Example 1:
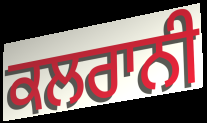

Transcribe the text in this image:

ਕਲਰਾਨੀ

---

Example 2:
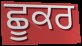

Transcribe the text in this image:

ਛੂਕਰ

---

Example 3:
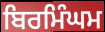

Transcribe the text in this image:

ਬਿਰਮਿੰਘਮ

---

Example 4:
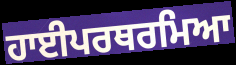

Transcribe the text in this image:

ਹਾਈਪਰਥਰਮਿਆ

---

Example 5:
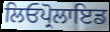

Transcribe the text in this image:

ਲਿਓਪ੍ਰੋਲਾਇਡ